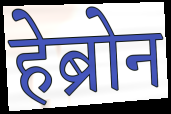
हेब्रोन